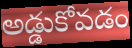
అడ్డుకోవడం